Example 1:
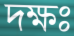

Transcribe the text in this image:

দক্ষঃ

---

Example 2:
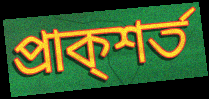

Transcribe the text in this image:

প্রাক্‌শর্ত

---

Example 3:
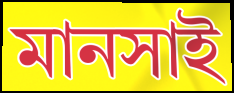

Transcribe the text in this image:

মানসাই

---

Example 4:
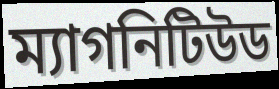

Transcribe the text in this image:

ম্যাগনিটিউড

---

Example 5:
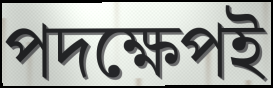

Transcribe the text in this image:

পদক্ষেপই